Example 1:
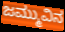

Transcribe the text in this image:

ಜಮ್ಮುವಿನ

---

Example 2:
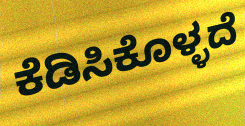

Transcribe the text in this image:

ಕೆಡಿಸಿಕೊಳ್ಳದೆ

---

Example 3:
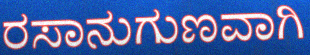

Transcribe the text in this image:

ರಸಾನುಗುಣವಾಗಿ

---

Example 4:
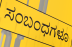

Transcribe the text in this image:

ಸಂಬಂಧಗಳೂ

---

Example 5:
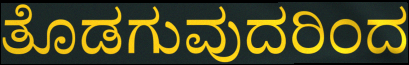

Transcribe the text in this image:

ತೊಡಗುವುದರಿಂದ